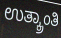
ಉತ್ಕ್ರಾಂತಿ